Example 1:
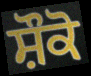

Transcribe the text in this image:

ਸ਼ੌਕੋ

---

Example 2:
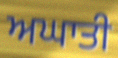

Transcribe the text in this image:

ਅਘਾਤੀ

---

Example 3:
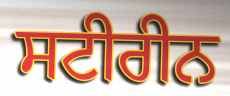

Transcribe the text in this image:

ਸਟੀਰੀਨ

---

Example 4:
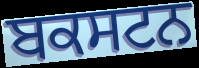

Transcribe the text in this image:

ਬਕਸਟਨ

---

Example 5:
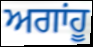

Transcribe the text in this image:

ਅਗਾਂਹੂ